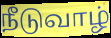
நீடுவாழ்